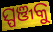
ସ୍ପଞ୍ଜକୁ